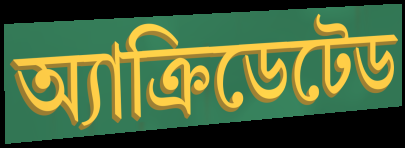
অ্যাক্রিডেটেড